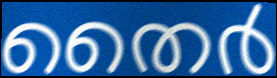
തൈർ